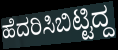
ಹೆದರಿಸಿಬಿಟ್ಟಿದ್ದ